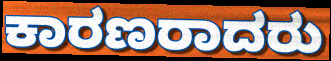
ಕಾರಣರಾದರು